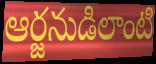
ఆర్జనుడిలాంటి